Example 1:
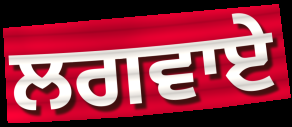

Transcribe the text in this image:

ਲਗਵਾਏ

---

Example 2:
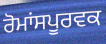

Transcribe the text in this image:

ਰੋਮਾਂਸਪੂਰਵਕ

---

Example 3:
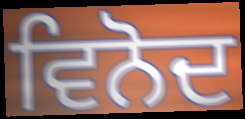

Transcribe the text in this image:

ਵਿਨੋਦ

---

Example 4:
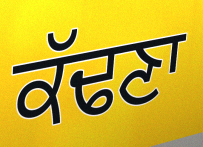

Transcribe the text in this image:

ਕੱਢਣਾ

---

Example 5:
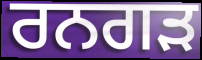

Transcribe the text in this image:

ਰਨਗੜ